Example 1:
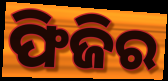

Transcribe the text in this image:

ଫିଜିର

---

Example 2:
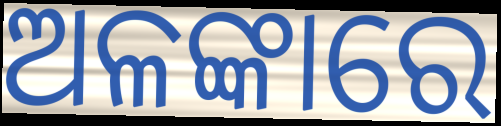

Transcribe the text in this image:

ଅଳଙ୍କାରେ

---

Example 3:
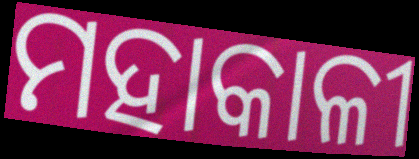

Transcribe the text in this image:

ମହାକାଳୀ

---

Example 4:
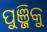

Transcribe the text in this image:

ପୁଞ୍ଜିକୁ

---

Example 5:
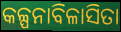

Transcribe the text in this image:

କଳ୍ପନାବିଳାସିତା